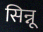
सिन्नू